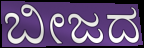
ಬೀಜದ